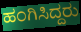
ಹಂಗಿಸಿದ್ದರು